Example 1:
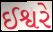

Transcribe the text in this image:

ઈશ્વરે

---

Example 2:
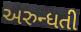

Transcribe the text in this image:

અરુન્ધતી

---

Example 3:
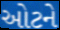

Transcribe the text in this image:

ઓટને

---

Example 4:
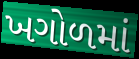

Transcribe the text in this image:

ખગોળમાં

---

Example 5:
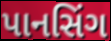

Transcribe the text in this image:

પાનસિંગ